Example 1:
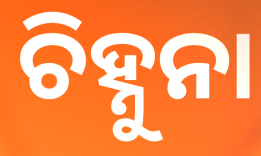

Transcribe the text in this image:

ଚିହ୍ନୁନା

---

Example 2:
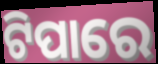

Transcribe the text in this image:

ଟିପାରେ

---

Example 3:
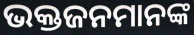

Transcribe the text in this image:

ଭକ୍ତଜନମାନଙ୍କ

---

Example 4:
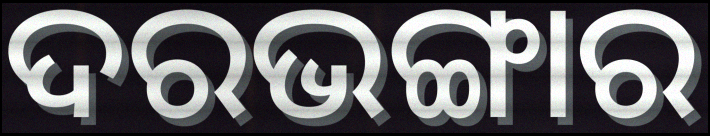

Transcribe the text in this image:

ଦରଭଙ୍ଗାର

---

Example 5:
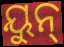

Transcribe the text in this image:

ୟୁନ୍